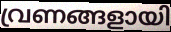
വ്രണങ്ങളായി